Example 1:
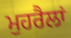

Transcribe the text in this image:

ਮੁਹਰੈਲਾਂ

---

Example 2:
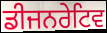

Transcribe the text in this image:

ਡੀਜਨਰੇਟਿਵ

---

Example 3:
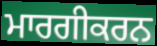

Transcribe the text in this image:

ਮਾਰਗੀਕਰਨ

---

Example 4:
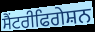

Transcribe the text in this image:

ਸੈਂਟਰੀਫਿਗੇਸ਼ਨ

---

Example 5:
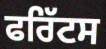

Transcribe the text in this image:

ਫਰਿੱਟਸ